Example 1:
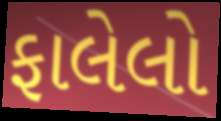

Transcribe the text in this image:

ફાલેલો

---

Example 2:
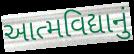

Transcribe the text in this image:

આત્મવિદ્યાનું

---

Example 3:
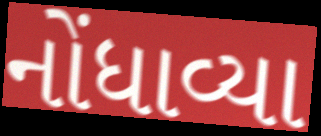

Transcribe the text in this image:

નોંધાવ્યા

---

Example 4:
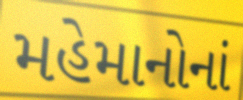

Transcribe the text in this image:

મહેમાનોનાં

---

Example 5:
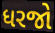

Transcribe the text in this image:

ધરજો